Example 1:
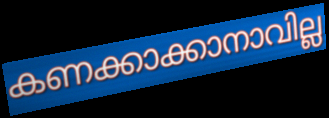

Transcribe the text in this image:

കണക്കാക്കാനാവില്ല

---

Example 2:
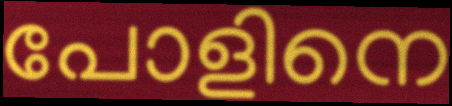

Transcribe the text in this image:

പോളിനെ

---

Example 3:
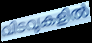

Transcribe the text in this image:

വിടവുകളിൽ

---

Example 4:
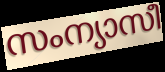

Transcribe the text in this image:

സംന്യാസീ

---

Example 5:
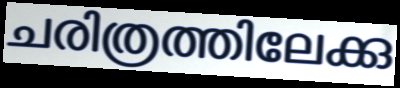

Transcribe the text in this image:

ചരിത്രത്തിലേക്കു